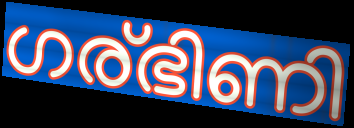
ഗര്ഭിണി